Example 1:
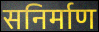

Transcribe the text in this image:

सनिर्माण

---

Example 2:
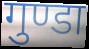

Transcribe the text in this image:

गुण्डा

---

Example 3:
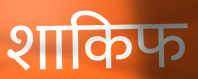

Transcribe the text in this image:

शाकिफ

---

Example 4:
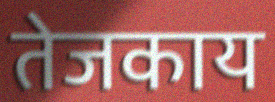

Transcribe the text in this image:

तेजकाय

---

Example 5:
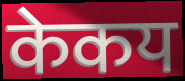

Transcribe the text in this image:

केकय